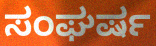
ಸಂಘರ್ಷ